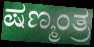
ಷಣ್ಮಂತ್ರ